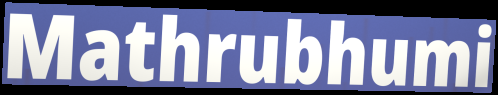
Mathrubhumi